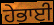
ਹੇਭਾਈ